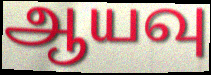
ஆயவு